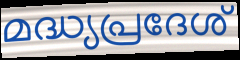
മദ്ധ്യപ്രദേശ്